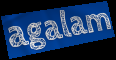
agalam